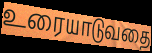
உரையாடுவதை